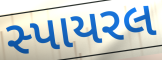
સ્પાયરલ